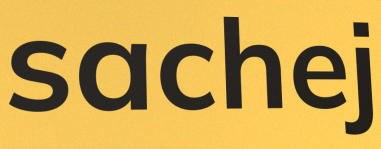
sachej